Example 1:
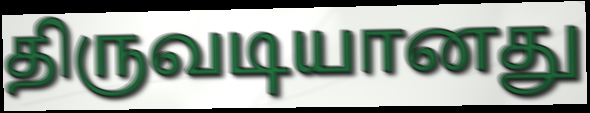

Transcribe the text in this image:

திருவடியானது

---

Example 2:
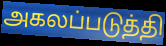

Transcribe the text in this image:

அகலப்படுத்தி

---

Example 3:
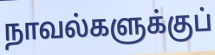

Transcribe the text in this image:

நாவல்களுக்குப்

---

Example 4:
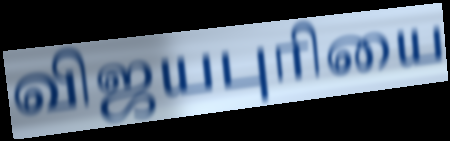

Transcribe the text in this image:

விஜயபுரியை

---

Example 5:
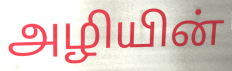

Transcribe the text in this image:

அழியின்